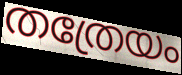
തത്രേയം